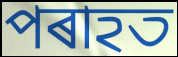
পৰাহত